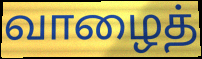
வாழைத்